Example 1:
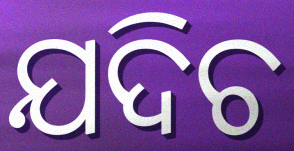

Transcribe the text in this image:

ଯଦିଚ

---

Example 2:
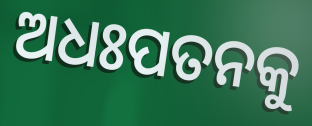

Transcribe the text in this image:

ଅଧଃପତନକୁ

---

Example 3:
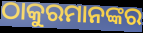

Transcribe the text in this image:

ଠାକୁରମାନଙ୍କର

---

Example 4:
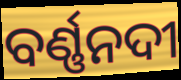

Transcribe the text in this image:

ବର୍ଣ୍ଣନଦୀ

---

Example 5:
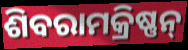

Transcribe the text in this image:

ଶିବରାମକ୍ରିଷ୍ଣନ୍